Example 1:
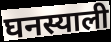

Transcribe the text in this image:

घनस्याली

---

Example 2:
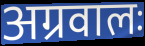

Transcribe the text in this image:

अग्रवालः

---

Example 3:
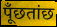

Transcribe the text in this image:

पूँछतांछ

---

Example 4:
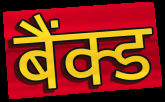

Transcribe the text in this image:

बैंक्ड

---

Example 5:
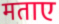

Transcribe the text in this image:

मताए